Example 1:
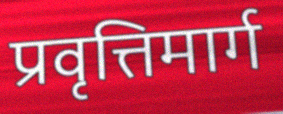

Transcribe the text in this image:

प्रवृत्तिमार्ग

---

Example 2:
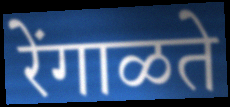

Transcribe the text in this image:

रेंगाळते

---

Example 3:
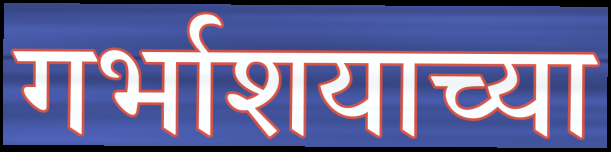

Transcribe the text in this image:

गर्भाशयाच्या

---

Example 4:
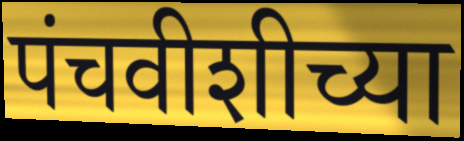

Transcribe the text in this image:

पंचवीशीच्या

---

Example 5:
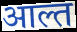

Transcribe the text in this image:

आल्त